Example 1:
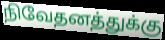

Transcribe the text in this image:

நிவேதனத்துக்கு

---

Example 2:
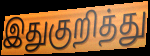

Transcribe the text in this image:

இதுகுறித்து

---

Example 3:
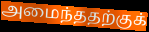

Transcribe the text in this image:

அமைந்ததற்குக்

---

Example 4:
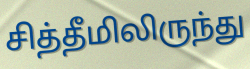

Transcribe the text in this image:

சித்தீமிலிருந்து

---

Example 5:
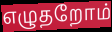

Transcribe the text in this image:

எழுதறோம்